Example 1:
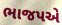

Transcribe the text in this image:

ભાજપએ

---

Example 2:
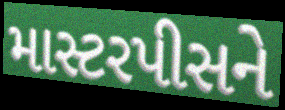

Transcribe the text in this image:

માસ્ટરપીસને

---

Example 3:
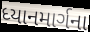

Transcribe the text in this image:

ધ્યાનમાર્ગના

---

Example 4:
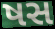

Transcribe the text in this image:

ષસ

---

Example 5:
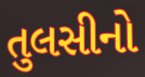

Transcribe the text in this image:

તુલસીનો